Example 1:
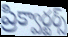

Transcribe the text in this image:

ప్రిక్వార్టర్స్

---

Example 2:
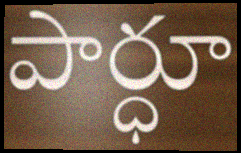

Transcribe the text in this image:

పార్ధూ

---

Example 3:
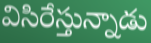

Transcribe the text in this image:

విసిరేస్తున్నాడు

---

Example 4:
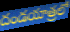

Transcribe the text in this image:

దండయాత్రలో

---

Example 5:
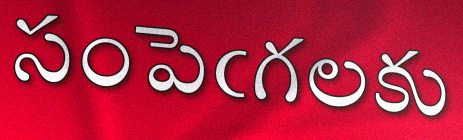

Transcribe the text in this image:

సంపెఁగలకు